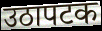
उठापटक